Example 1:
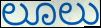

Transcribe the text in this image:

ಲೂಲು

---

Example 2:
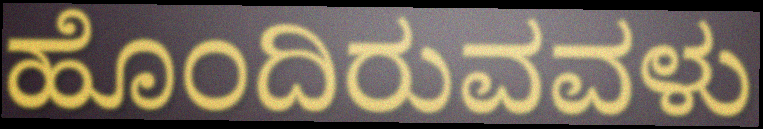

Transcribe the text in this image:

ಹೊಂದಿರುವವಳು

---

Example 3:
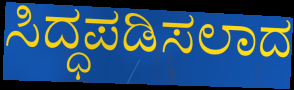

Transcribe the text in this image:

ಸಿದ್ಧಪಡಿಸಲಾದ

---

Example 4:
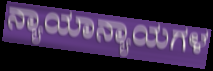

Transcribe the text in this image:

ನ್ಯಾಯಾನ್ಯಾಯಗಳ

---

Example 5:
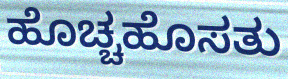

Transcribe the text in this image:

ಹೊಚ್ಚಹೊಸತು